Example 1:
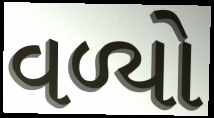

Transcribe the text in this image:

વળ્યો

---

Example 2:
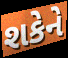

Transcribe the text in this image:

શકેને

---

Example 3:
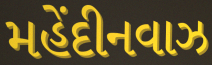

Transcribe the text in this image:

મહેંદીનવાઝ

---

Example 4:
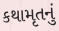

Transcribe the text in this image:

કથામૃતનું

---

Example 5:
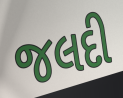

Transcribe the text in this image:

જલદી